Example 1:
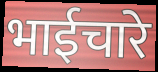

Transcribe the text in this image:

भाईचारे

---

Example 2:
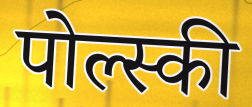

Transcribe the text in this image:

पोल्स्की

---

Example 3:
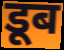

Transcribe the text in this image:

डूब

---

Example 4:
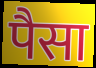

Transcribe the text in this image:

पैसा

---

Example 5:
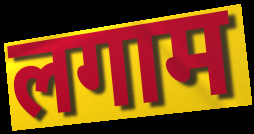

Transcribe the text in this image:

लगाम